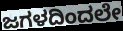
ಜಗಳದಿಂದಲೇ